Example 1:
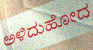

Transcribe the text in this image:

ಅಳಿದುಹೋದ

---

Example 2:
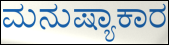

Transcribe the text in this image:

ಮನುಷ್ಯಾಕಾರ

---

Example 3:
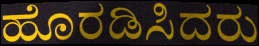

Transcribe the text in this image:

ಹೊರಡಿಸಿದರು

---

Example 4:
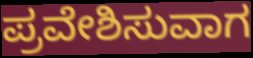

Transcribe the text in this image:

ಪ್ರವೇಶಿಸುವಾಗ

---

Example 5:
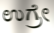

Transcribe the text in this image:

ಉಗ್ರೇ